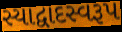
સ્યાદ્વાદસ્વરૂપ